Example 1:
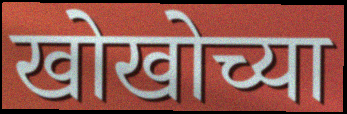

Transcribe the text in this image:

खोखोच्या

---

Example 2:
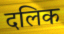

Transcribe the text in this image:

दलिक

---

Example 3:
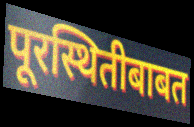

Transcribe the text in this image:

पूरस्थितीबाबत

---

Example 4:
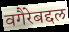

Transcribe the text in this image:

वगैरेबद्दल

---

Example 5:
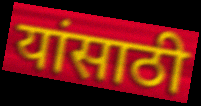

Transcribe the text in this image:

यांसाठी